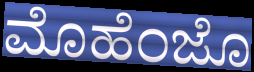
ಮೊಹೆಂಜೊ